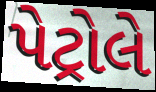
પેટ્રોલે